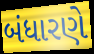
બંધારણે